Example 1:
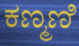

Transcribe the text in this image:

ಕಣ್ಮಣಿ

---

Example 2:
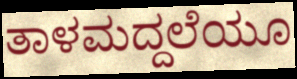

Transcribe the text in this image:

ತಾಳಮದ್ದಲೆಯೂ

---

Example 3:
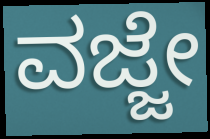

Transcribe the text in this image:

ವಜ್ಜೇ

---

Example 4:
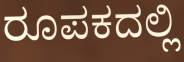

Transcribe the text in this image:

ರೂಪಕದಲ್ಲಿ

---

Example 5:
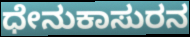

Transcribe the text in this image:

ಧೇನುಕಾಸುರನ